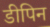
डीपिन